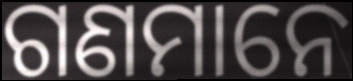
ଗଣମାନେ